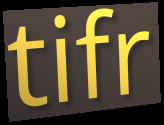
tifr